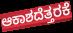
ಆಕಾಶದೆತ್ತರಕೆ